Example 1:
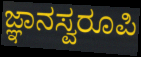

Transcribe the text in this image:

ಜ್ಞಾನಸ್ವರೂಪಿ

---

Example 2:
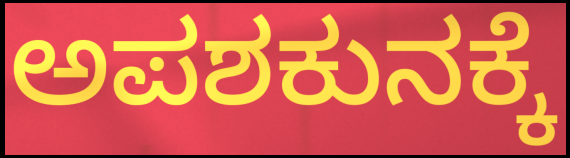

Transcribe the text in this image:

ಅಪಶಕುನಕ್ಕೆ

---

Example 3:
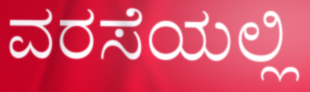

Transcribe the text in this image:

ವರಸೆಯಲ್ಲಿ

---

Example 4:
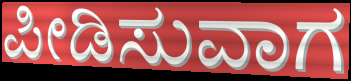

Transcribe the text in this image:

ಪೀಡಿಸುವಾಗ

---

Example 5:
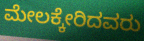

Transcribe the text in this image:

ಮೇಲಕ್ಕೇರಿದವರು